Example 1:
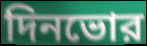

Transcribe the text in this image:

দিনভোর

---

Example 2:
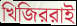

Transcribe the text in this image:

খিজিররাই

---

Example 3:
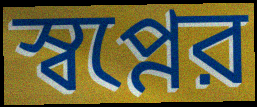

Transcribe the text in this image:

স্বপ্নের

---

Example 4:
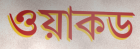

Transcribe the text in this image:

ওয়াকড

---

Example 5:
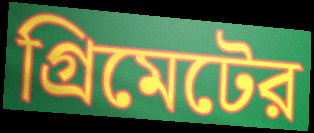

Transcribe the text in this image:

গ্রিমেটের